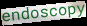
endoscopy